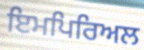
ਇਮਪਿਰਿਅਲ